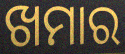
ଖମାର